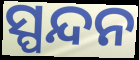
ସ୍ପନ୍ଦନ